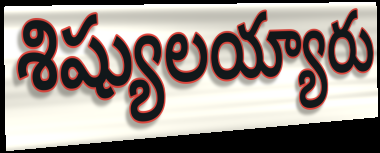
శిష్యులయ్యారు